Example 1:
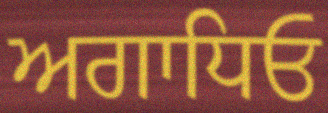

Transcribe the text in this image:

ਅਗਾਧਿਓ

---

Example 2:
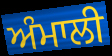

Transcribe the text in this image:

ਅੰਮਾਲੀ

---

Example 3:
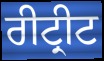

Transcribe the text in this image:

ਰੀਟ੍ਰੀਟ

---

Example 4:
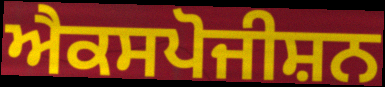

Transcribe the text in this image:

ਐਕਸਪੋਜੀਸ਼ਨ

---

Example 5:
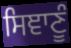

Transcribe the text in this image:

ਸਿਞਾਣੂੰ